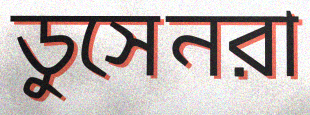
ডুসেনরা